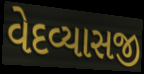
વેદવ્યાસજી